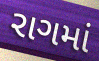
રાગમાં